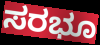
ಸರಭೂ